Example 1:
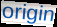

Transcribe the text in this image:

origin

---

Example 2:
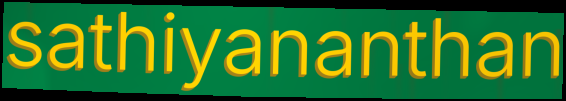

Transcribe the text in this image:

sathiyananthan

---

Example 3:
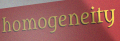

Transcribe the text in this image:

homogeneity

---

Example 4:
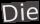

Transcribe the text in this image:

Die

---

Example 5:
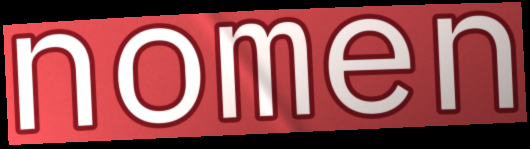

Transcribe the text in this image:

nomen